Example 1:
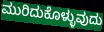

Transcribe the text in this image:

ಮುರಿದುಕೊಳ್ಳುವುದು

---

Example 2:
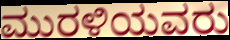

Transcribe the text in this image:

ಮುರಳಿಯವರು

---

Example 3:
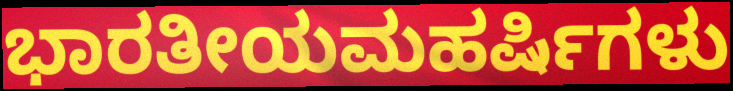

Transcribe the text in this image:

ಭಾರತೀಯಮಹರ್ಷಿಗಳು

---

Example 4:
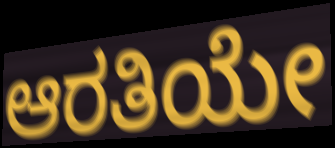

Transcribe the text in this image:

ಆರತಿಯೇ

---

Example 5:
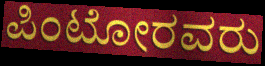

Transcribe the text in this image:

ಪಿಂಟೋರವರು